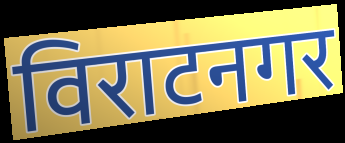
विराटनगर